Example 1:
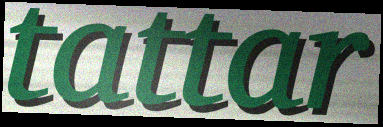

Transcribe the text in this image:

tattar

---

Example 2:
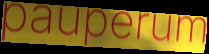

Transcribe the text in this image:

pauperum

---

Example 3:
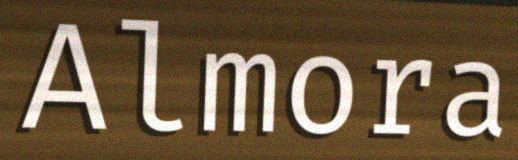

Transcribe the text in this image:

Almora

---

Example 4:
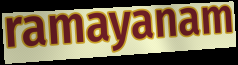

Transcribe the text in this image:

ramayanam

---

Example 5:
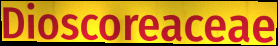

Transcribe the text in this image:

Dioscoreaceae